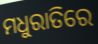
ମଧୁରାତିରେ